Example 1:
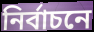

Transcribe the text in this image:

নির্বাচনে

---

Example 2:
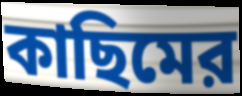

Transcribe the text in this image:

কাছিমের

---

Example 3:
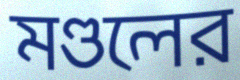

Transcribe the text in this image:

মণ্ডলের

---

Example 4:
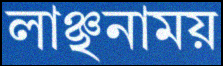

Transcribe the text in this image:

লাঞ্ছনাময়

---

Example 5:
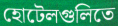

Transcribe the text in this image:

হোটেলগুলিতে